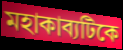
মহাকাব্যটিকে